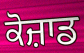
ਕੋਜ਼ਾਡ